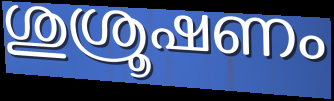
ശുശ്രൂഷണം